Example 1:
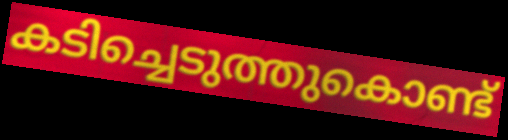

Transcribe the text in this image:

കടിച്ചെടുത്തുകൊണ്ട്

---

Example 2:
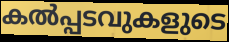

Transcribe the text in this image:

കൽപ്പടവുകളുടെ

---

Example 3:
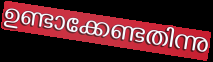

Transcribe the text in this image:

ഉണ്ടാക്കേണ്ടതിന്നു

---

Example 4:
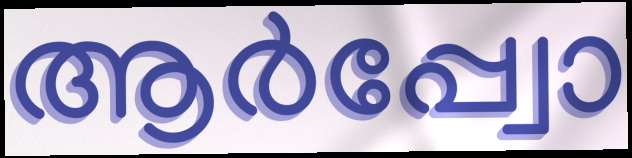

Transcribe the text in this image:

ആർപ്പ്വോ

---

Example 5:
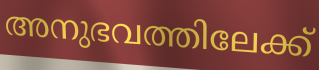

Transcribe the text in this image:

അനുഭവത്തിലേക്ക്